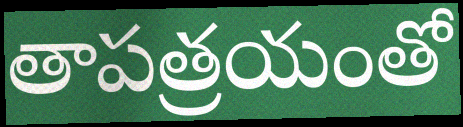
తాపత్రయంతో